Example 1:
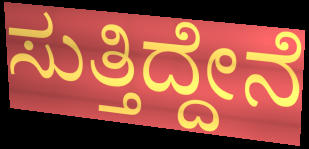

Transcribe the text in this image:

ಸುತ್ತಿದ್ದೇನೆ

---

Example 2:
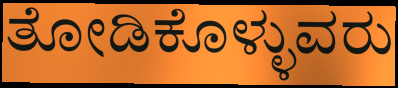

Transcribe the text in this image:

ತೋಡಿಕೊಳ್ಳುವರು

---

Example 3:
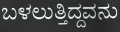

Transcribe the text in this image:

ಬಳಲುತ್ತಿದ್ದವನು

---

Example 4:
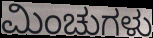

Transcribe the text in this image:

ಮಿಂಚುಗಳು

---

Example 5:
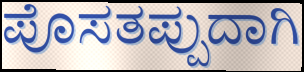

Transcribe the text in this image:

ಪೊಸತಪ್ಪುದಾಗಿ